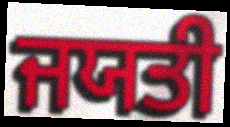
ਜਯਤੀ